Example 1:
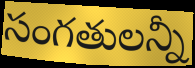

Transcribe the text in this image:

సంగతులన్నీ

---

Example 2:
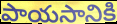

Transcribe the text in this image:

పాయసానికి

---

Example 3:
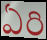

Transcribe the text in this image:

ఏరి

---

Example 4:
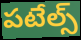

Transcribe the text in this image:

పటేల్స్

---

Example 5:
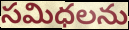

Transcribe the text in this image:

సమిధలను